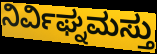
ನಿರ್ವಿಘ್ನಮಸ್ತು